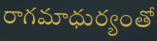
రాగమాధుర్యంతో